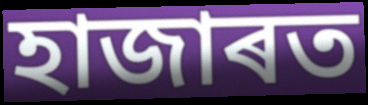
হাজাৰত